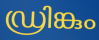
ഡ്രിങ്കും